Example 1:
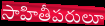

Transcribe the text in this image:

సాహితీపరులూ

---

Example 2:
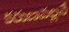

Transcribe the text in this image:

కరుణవల్లనే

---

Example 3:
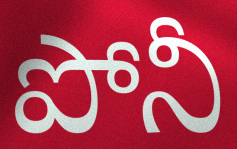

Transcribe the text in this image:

పోనీ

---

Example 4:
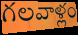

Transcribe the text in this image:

గలవాళ్లం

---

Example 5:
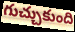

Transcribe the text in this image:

గుచ్చుకుంది